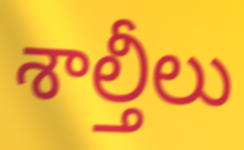
శాల్తీలు